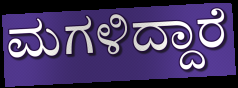
ಮಗಳಿದ್ದಾರೆ